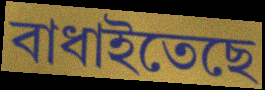
বাধাইতেছে